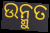
ଉନ୍ମୁତ